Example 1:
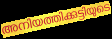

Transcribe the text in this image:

അനിയത്തിക്കുട്ടിയുടെ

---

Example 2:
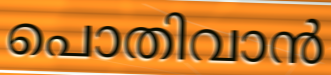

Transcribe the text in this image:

പൊതിവാൻ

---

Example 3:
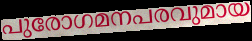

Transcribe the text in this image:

പുരോഗമനപരവുമായ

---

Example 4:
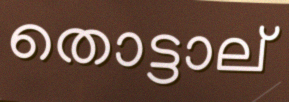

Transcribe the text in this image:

തൊട്ടാല്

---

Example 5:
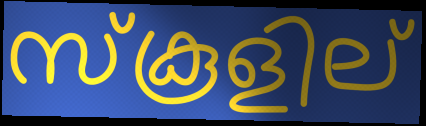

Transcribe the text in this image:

സ്കൂളില്